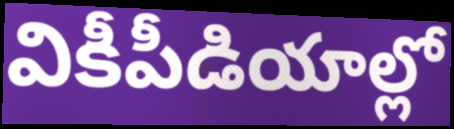
వికీపీడియాల్లో